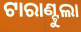
ଟାରାଣ୍ଟୁଲା